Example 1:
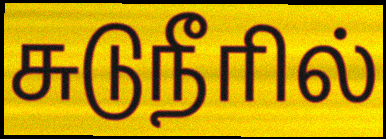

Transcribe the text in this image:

சுடுநீரில்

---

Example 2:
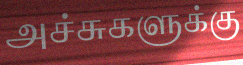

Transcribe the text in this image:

அச்சுகளுக்கு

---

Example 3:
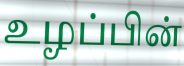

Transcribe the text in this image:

உழப்பின்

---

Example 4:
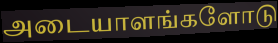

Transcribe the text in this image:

அடையாளங்களோடு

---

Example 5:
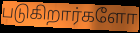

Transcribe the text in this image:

படுகிறார்களோ